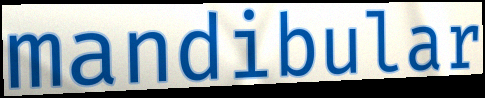
mandibular